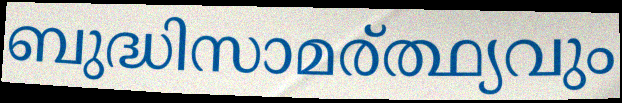
ബുദ്ധിസാമര്ത്ഥ്യവും